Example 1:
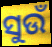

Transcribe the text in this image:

ସୁଉଁ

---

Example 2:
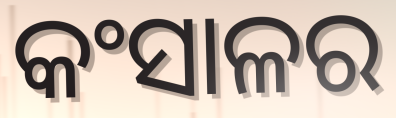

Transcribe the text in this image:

କଂସାଳର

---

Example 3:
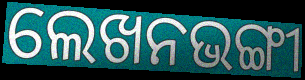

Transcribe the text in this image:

ଲେଖନଭଙ୍ଗୀ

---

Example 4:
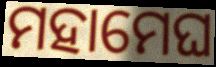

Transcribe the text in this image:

ମହାମେଘ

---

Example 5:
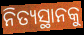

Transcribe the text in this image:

ନିତ୍ୟସ୍ଥାନକୁ